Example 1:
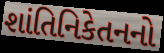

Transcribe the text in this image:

શાંતિનિકેતનનો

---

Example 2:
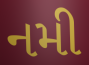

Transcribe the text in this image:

નમી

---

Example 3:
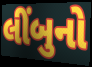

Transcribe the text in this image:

લીંબુનો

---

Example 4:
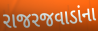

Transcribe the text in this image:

રાજરજવાડાંના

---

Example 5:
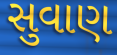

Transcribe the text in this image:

સુવાણ